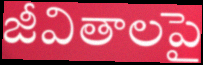
జీవితాలపై